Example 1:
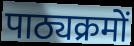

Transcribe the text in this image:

पाठ्यक्रमों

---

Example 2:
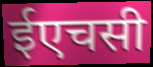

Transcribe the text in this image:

ईएचसी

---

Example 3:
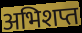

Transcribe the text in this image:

अभिशप्त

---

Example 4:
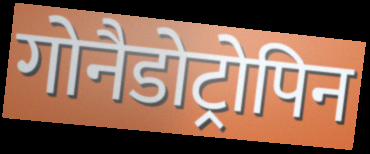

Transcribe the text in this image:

गोनैडोट्रोपिन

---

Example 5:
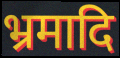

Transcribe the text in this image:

भ्रमादि